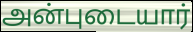
அன்புடையார்